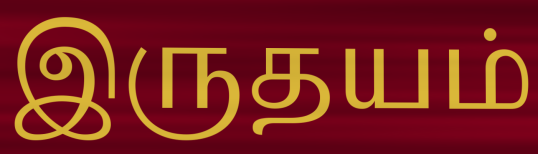
இருதயம்